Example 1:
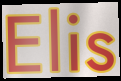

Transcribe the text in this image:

Elis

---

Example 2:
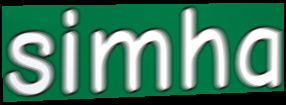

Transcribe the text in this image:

simha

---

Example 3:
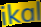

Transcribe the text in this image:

ikal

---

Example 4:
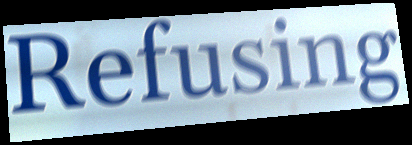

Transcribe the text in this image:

Refusing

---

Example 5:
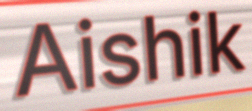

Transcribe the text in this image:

Aishik